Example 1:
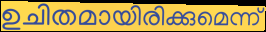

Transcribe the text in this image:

ഉചിതമായിരിക്കുമെന്ന്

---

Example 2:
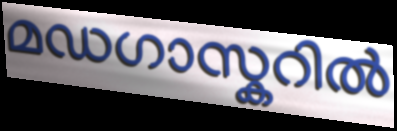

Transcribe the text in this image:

മഡഗാസ്കറിൽ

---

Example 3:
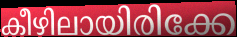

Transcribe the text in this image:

കീഴിലായിരിക്കേ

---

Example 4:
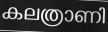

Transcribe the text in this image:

കലത്രാണി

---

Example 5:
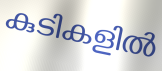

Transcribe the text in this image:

കുടികളിൽ